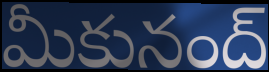
మీకునంద్